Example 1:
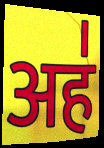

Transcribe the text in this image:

अह॑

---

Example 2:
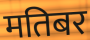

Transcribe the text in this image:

मतिबर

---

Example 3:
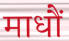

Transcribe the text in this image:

माधौं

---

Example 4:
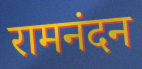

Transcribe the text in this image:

रामनंदन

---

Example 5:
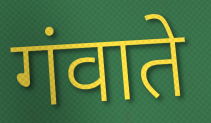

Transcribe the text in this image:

गंवाते